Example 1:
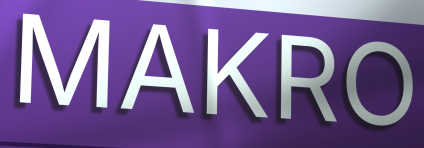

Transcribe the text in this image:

MAKRO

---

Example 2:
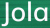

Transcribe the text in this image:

Jola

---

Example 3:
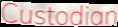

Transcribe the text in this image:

Custodian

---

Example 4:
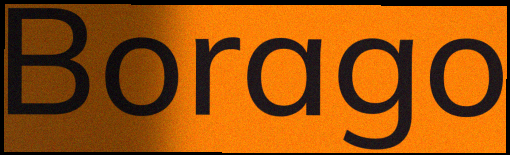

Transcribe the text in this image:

Borago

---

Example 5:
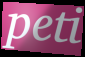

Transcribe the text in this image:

peti